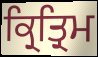
ਕ੍ਰਿਤ੍ਰਿਮ